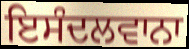
ਇਸੰਦਲਵਾਨਾ